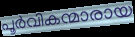
പൂർവികന്മാരായ